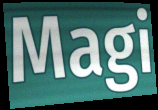
Magi